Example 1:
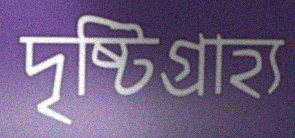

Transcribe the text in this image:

দৃষ্টিগ্রাহ্য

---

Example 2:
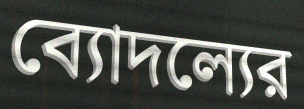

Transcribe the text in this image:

ব্যোদল্যের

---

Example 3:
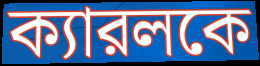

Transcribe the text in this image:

ক্যারলকে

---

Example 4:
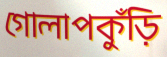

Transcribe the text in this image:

গোলাপকুঁড়ি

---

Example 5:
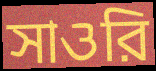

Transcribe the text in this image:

সাওরি